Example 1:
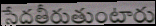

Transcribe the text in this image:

సేదతీరుతుంటారు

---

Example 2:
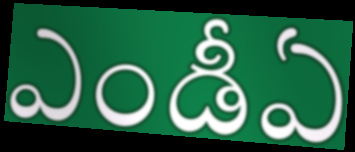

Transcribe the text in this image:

ఎండీఏ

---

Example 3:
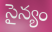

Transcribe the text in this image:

సైన్యం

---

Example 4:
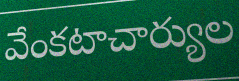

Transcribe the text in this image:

వేంకటాచార్యుల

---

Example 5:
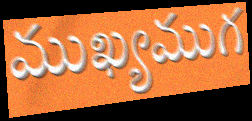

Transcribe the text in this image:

ముఖ్యముగ